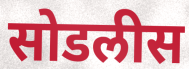
सोडलीस